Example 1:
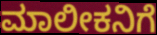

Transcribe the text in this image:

ಮಾಲೀಕನಿಗೆ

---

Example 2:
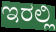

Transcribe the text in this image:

ಇರಲ್ಲಿ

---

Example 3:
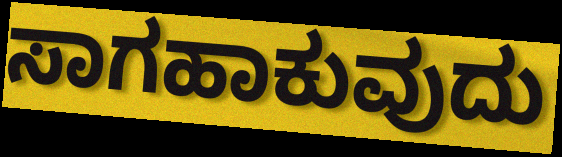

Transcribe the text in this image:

ಸಾಗಹಾಕುವುದು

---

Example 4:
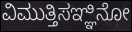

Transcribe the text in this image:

ವಿಮುತ್ತಿಸಞ್ಞಿನೋ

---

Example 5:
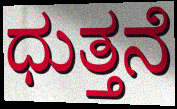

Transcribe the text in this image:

ಧುತ್ತನೆ